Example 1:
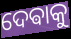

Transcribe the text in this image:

ଦେଵାକୁ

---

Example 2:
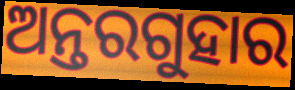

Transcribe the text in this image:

ଅନ୍ତରଗୁହାର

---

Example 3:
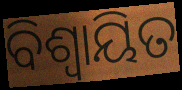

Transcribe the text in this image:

ବିଶ୍ବାୟିତ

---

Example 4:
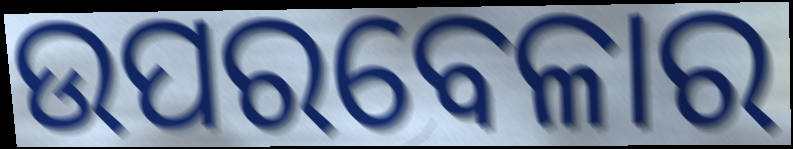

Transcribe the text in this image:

ଉପରବେଳାର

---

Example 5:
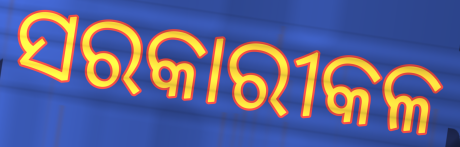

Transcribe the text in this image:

ସରକାରୀକଳ